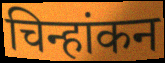
चिन्हांकन